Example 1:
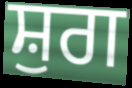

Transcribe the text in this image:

ਸ਼ੁਗ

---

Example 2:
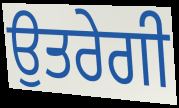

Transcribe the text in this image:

ਉਤਰੇਗੀ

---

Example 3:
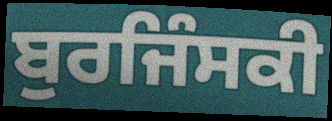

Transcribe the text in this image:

ਬੁਰਜਿੰਸਕੀ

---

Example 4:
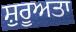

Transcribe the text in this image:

ਸ਼ੁਰੂਅਤਾ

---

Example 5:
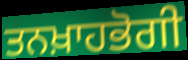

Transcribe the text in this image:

ਤਨਖ਼ਾਹਭੋਗੀ